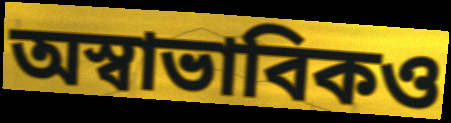
অস্বাভাবিকও